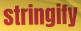
stringify